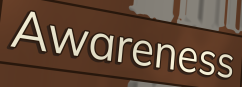
Awareness